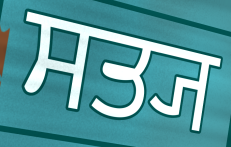
ਸਤ੍ਯ